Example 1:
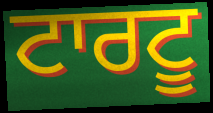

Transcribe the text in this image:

ਟਾਰਟੂ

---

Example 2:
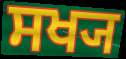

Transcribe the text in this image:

ਸਖ੍ਯ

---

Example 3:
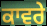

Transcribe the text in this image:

ਕਾਵਰੇ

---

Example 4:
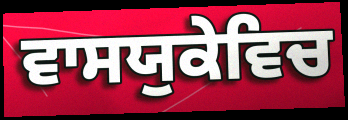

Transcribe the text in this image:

ਵਾਸਯੁਕੇਵਿਚ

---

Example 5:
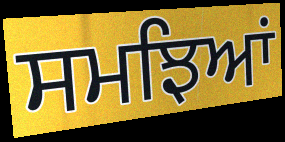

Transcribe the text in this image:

ਸਮਝਿਆਂ